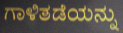
ಗಾಳಿತಡೆಯನ್ನು